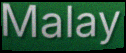
Malay